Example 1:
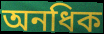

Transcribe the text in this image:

অনধিক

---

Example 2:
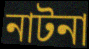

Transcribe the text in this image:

নাটনা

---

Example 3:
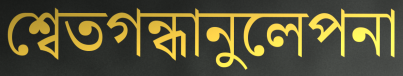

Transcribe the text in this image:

শ্বেতগন্ধানুলেপনা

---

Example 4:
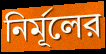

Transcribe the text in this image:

নির্মূলের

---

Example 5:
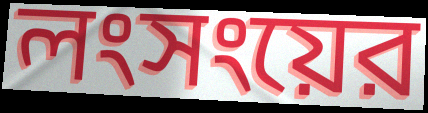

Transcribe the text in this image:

লংসংয়ের